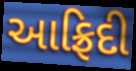
આફ્રિદી